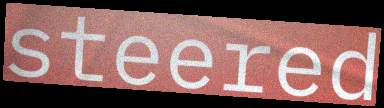
steered